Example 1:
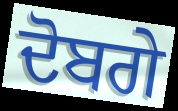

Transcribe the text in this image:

ਦੋਬਗੇ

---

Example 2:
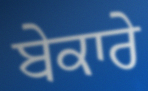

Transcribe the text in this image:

ਬੇਕਾਰੇ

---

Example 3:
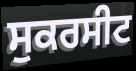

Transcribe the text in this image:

ਸੁਕਰਸੀਟ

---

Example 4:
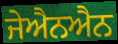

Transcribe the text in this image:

ਜੇਐਨਐਨ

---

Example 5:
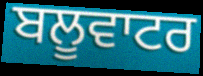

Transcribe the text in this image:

ਬਲੂਵਾਟਰ